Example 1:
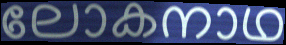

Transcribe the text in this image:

ലോകനാഥ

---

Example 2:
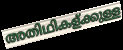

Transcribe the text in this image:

അതിഥികള്ക്കുള്ള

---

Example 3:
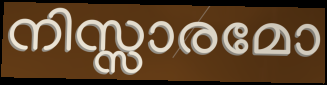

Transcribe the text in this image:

നിസ്സാരമോ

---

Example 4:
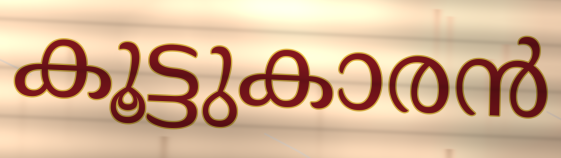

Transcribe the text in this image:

കൂട്ടുകാരൻ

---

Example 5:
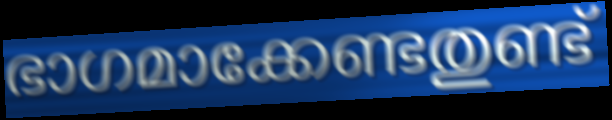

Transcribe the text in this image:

ഭാഗമാക്കേണ്ടതുണ്ട്